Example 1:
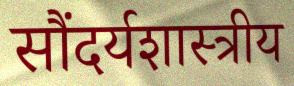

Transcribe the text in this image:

सौंदर्यशास्त्रीय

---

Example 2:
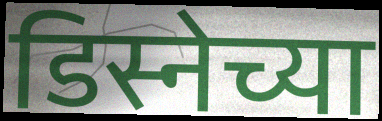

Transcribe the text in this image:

डिस्नेच्या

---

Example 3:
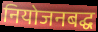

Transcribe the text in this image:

नियोजनबद्घ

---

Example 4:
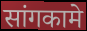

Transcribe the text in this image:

सांगकामे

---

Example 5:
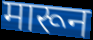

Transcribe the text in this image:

मारून